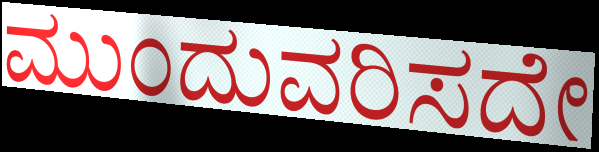
ಮುಂದುವರಿಸದೇ